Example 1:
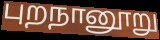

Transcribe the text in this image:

புறநானூறு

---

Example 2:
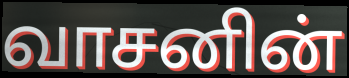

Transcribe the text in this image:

வாசனின்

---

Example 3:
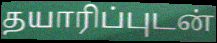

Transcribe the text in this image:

தயாரிப்புடன்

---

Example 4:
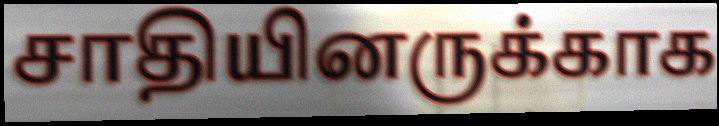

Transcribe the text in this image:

சாதியினருக்காக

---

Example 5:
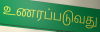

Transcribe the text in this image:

உணரப்படுவது